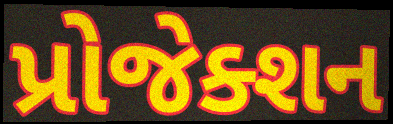
પ્રોજેક્શન